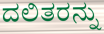
ದಲಿತರನ್ನು